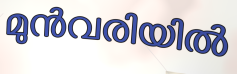
മുൻവരിയിൽ